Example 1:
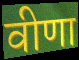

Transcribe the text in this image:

वीणा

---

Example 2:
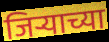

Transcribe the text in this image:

जिऱ्याच्या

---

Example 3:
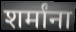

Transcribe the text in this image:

शर्मांना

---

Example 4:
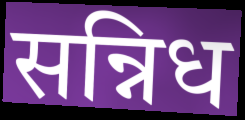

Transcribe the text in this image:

सन्निध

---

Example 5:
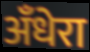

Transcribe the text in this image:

अँधेरा